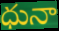
ధునా